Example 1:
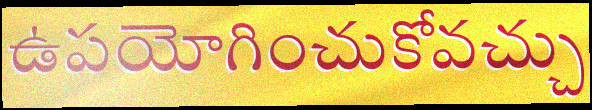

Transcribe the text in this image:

ఉపయోగించుకోవచ్చు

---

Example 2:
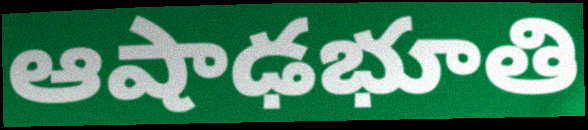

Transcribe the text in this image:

ఆషాఢభూతి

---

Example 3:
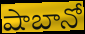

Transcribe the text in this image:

షాబానో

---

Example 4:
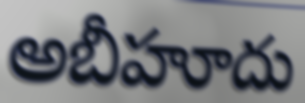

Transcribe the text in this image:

అబీహూదు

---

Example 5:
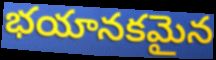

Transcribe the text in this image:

భయానకమైన